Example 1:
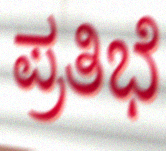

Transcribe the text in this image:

ಪ್ರತಿಭೆ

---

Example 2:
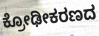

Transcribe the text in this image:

ಕ್ರೋಢೀಕರಣದ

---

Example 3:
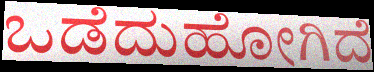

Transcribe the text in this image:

ಒಡೆದುಹೋಗಿದೆ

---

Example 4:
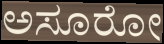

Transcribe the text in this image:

ಅಸೂರೋ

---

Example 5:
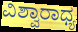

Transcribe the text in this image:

ವಿಶ್ವಾರಾಧ್ಯ